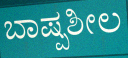
ಬಾಷ್ಪಶೀಲ